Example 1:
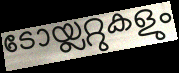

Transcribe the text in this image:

ടോയ്ലറ്റുകളും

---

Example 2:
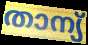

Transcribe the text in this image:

താന്യ്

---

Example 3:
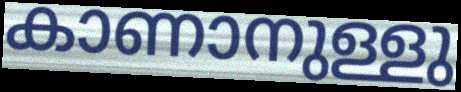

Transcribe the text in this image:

കാണാനുള്ളു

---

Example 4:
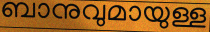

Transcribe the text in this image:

ബാനുവുമായുള്ള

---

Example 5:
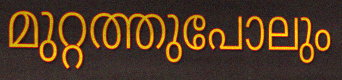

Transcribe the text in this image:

മുറ്റത്തുപോലും